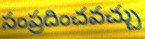
సంప్రదించవచ్చు